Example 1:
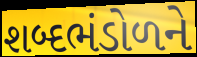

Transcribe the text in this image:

શબ્દભંડોળને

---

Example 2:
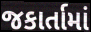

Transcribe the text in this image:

જકાર્તામાં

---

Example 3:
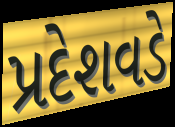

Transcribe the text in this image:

પ્રદેશવડે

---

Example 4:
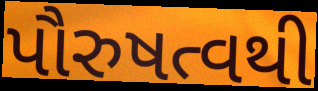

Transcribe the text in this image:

પૌરુષત્વથી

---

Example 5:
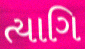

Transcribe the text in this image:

ત્યાગિ